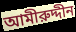
আমীরুদ্দীন